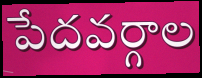
పేదవర్గాల